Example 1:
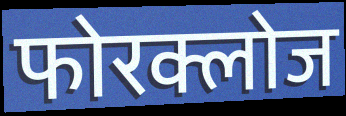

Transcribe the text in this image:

फोरक्लोज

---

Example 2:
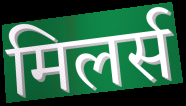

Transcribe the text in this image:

मिलर्स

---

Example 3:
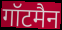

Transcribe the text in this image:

गॉटमैन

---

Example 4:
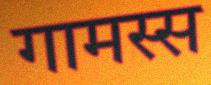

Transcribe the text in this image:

गामस्स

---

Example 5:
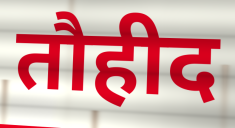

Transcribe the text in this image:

तौहीद